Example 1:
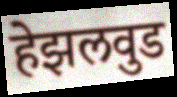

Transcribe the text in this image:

हेझलवुड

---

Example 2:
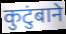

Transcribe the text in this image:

कुटुंबाने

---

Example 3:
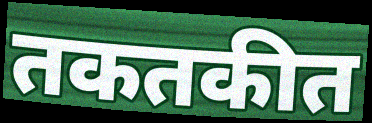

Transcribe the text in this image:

तकतकीत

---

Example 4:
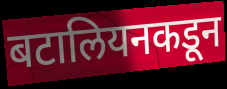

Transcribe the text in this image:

बटालियनकडून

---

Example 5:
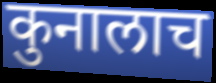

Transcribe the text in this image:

कुनालाच